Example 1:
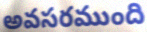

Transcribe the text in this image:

అవసరముంది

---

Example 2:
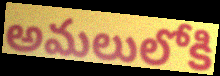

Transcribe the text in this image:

అమలులోకి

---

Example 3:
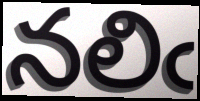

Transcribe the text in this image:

నలిఁ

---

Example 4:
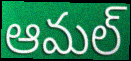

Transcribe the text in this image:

ఆమల్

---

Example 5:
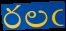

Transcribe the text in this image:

రలఁ